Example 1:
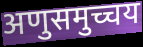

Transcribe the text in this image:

अणुसमुच्चय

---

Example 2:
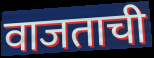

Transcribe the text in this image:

वाजताची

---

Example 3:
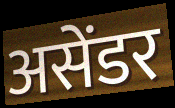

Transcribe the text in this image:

असेंडर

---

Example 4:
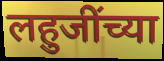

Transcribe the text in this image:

लहुजींच्या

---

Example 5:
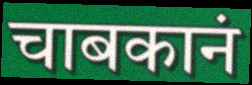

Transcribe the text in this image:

चाबकानं